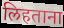
लिहताना